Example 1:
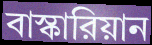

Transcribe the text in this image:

বাস্কারিয়ান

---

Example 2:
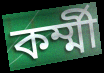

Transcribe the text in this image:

কর্ম্মী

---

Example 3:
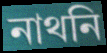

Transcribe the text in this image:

নাথনি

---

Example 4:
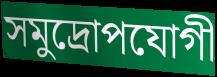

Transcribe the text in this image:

সমুদ্রোপযোগী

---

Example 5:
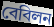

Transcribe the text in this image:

বেবিলন